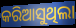
କରିଆସୁଥିଲା